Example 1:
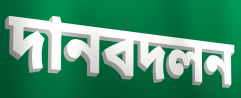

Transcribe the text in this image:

দানবদলন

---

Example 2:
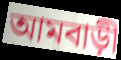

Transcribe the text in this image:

আমবাড়ী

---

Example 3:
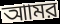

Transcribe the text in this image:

আামর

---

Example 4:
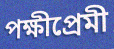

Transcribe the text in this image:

পক্ষীপ্রেমী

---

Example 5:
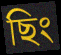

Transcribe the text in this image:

ছিং